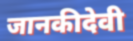
जानकीदेवी